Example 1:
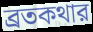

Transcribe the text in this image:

ব্রতকথার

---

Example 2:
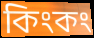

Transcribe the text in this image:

কিংকং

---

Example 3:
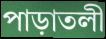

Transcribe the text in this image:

পাড়াতলী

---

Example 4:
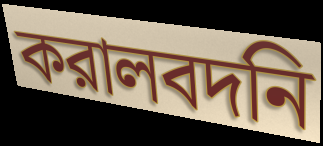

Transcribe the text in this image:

করালবদনি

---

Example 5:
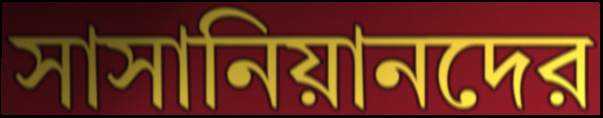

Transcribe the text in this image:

সাসানিয়ানদের